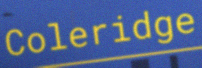
Coleridge